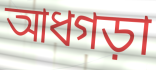
আধগড়া